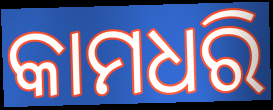
କାମଧରି